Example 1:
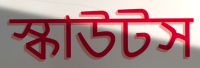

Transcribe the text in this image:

স্কাউটস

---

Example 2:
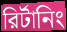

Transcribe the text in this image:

রির্টানিং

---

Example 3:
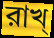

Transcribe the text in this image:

রাখ্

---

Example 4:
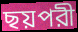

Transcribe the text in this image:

ছয়পরী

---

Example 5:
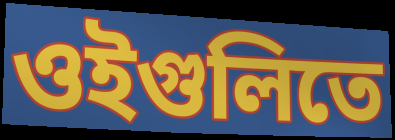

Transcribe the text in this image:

ওইগুলিতে